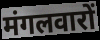
मंगलवारों